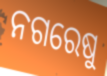
ନଗରେଷୁ